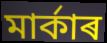
মাৰ্কাৰ